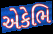
એકેભિ